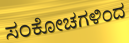
ಸಂಕೋಚಗಳಿಂದ